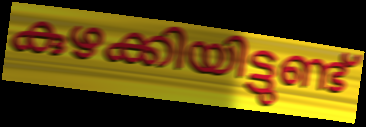
കുഴക്കിയിട്ടുണ്ട്